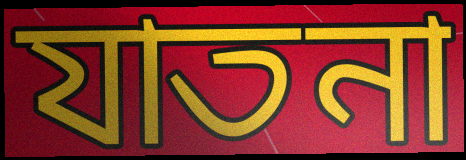
যাতনা